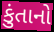
કુંતાનો